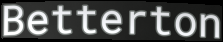
Betterton